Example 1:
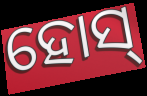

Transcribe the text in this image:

ହୋସ୍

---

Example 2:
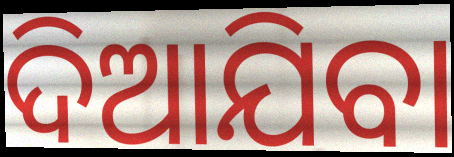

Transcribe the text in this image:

ଦିଆଯିବା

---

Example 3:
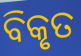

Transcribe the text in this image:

ବିକୃତ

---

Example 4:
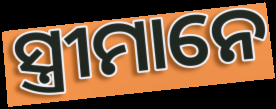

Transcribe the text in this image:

ସ୍ତ୍ରୀମାନେ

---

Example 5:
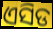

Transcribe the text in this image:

ଏସିଡ